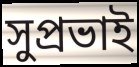
সুপ্রভাই